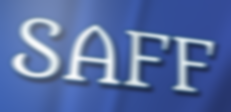
SAFF